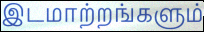
இடமாற்றங்களும்